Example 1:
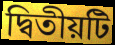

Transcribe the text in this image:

দ্বিতীয়টি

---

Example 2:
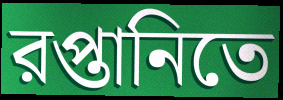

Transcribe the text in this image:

রপ্তানিতে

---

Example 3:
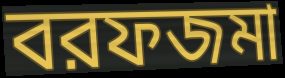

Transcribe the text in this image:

বরফজমা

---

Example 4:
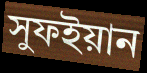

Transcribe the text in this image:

সুফইয়ান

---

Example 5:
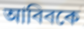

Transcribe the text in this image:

আবিবকে